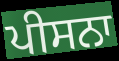
ਪੀਸਨਾ